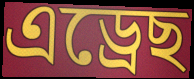
এড্ৰেছ